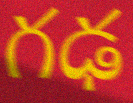
గఢ